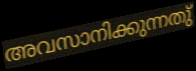
അവസാനിക്കുന്നതു്